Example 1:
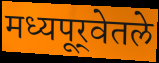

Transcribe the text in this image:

मध्यपूर्वेतले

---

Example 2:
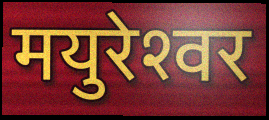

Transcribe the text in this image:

मयुरेश्वर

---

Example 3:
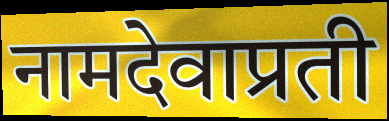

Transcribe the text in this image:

नामदेवाप्रती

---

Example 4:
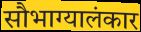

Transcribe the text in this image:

सौभाग्यालंकार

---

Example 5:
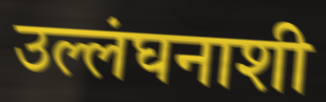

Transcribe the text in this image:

उल्लंघनाशी